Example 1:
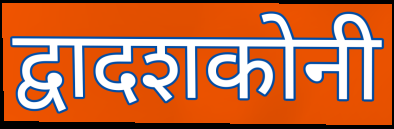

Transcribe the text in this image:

द्वादशकोनी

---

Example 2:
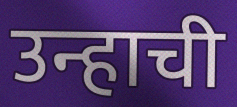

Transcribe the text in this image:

उन्हाची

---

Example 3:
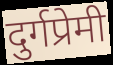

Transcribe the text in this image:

दुर्गप्रेमी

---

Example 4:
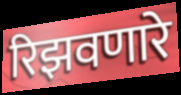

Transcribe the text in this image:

रिझवणारे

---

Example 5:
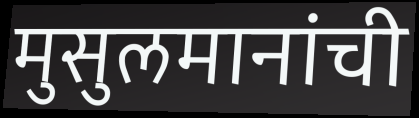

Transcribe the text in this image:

मुसुलमानांची